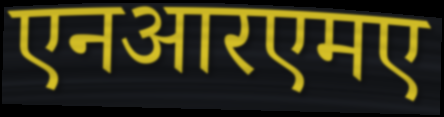
एनआरएमए